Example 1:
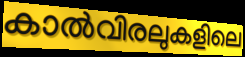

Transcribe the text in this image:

കാൽവിരലുകളിലെ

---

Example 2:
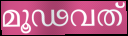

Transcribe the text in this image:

മൂഢവത്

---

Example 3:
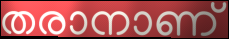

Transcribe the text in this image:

തരാനാണ്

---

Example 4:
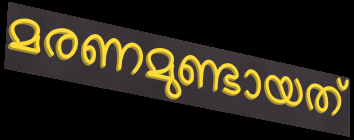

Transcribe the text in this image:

മരണമുണ്ടായത്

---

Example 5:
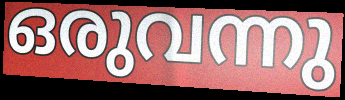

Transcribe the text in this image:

ഒരുവന്നു